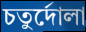
চতুর্দোলা